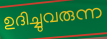
ഉദിച്ചുവരുന്ന